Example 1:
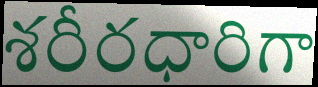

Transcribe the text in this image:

శరీరధారిగా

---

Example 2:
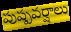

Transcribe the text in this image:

పుష్పవర్షాలు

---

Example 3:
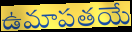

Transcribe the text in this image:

ఉమాపతయే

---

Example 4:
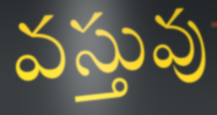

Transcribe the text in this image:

వస్తువు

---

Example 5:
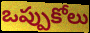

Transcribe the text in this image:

ఒప్పుకోలు